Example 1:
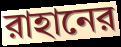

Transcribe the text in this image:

রাহানের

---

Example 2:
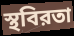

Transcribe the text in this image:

স্থবিরতা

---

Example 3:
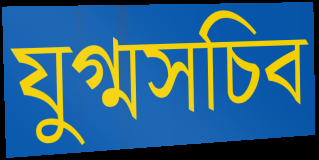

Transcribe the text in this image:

যুগ্মসচিব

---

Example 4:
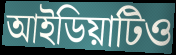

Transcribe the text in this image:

আইডিয়াটিও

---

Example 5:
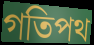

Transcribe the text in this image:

গতিপথ